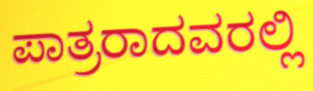
ಪಾತ್ರರಾದವರಲ್ಲಿ